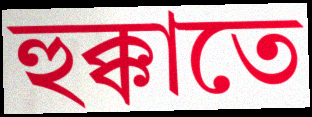
হুক্কাতে